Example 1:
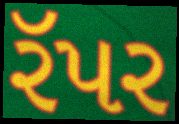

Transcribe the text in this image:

રૅપર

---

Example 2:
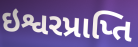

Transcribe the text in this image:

ઇશ્વરપ્રાપ્તિ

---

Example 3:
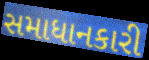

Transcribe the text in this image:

સમાધાનકારી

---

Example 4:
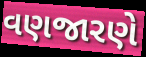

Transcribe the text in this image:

વણજારણે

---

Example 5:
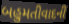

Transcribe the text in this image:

બહુમતીવાદની